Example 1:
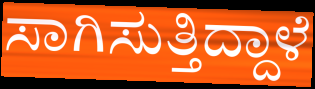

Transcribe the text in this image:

ಸಾಗಿಸುತ್ತಿದ್ದಾಳೆ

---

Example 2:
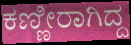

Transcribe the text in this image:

ಕಣ್ಣೀರಾಗಿದ್ದ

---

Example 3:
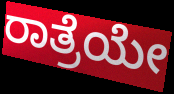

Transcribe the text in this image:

ರಾತ್ರೆಯೇ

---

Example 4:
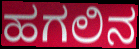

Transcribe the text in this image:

ಹಗಲಿನ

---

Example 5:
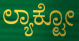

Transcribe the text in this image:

ಲ್ಯಾಕ್ಟೋ